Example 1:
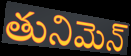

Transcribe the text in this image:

తునిమెన్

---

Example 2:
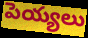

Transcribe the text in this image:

పెయ్యలు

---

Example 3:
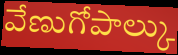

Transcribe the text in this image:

వేణుగోపాల్కు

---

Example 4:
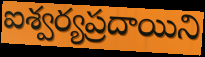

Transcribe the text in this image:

ఐశ్వర్యప్రదాయిని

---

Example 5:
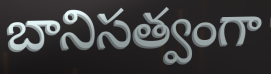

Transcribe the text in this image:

బానిసత్వంగా